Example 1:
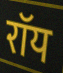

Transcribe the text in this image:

रॉय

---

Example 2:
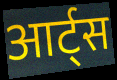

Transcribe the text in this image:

आर्ट्स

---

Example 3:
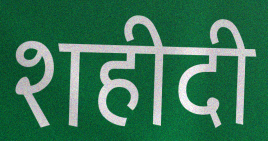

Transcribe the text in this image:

शहीदी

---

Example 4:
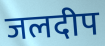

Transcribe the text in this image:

जलदीप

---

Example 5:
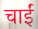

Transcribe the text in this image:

चाईं